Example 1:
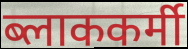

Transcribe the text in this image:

ब्लाककर्मी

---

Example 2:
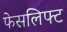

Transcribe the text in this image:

फेसलिफ्ट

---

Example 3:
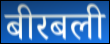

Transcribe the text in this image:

बीरबली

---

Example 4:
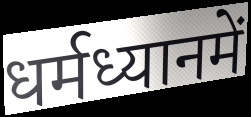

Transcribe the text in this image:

धर्मध्यानमें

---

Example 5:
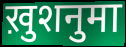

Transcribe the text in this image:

ख़ुशनुमा